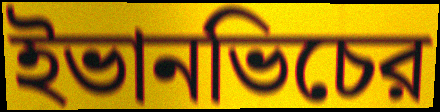
ইভানভিচের